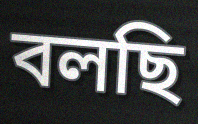
বলছি